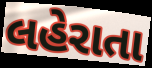
લહેરાતા